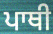
ਪਾਥੀ